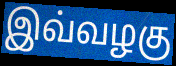
இவ்வழகு